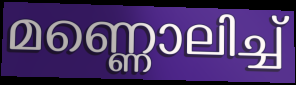
മണ്ണൊലിച്ച്